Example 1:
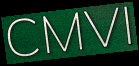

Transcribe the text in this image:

CMVI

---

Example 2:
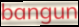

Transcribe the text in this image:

bangun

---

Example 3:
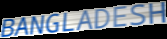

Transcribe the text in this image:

BANGLADESH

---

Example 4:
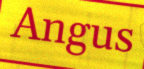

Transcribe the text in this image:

Angus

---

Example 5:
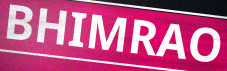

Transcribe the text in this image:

BHIMRAO